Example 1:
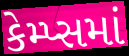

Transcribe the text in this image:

કેમ્પ્સમાં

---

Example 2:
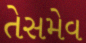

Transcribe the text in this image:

તેસમેવ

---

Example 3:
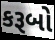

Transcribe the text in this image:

કરૂબો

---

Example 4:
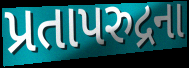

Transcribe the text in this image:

પ્રતાપરુદ્રના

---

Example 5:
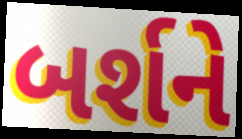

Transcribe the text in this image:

બર્શને